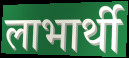
लाभार्थी